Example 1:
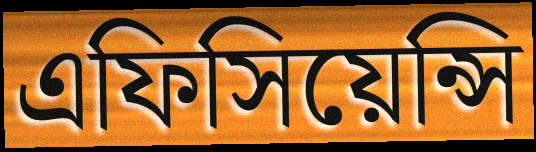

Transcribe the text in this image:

এফিসিয়েন্সি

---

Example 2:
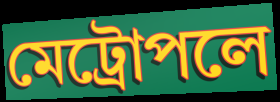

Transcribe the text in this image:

মেট্রোপলে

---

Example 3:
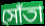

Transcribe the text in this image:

সোঁতা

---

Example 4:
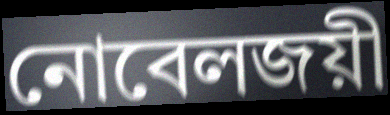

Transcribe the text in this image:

নোবেলজয়ী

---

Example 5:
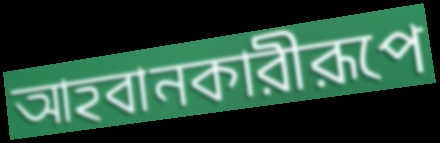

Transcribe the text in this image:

আহবানকারীরূপে